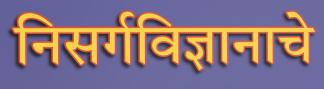
निसर्गविज्ञानाचे